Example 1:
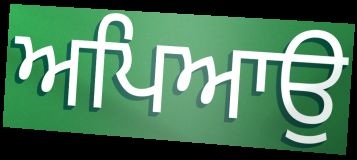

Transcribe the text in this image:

ਅਪਿਆਉ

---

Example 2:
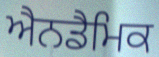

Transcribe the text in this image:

ਐਨਡੈਮਿਕ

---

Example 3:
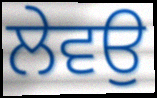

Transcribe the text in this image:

ਲੇਵਉ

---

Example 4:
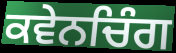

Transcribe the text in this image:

ਕਵੇਨਚਿੰਗ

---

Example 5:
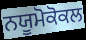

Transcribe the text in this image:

ਨਯੂਮੋਕੋਕਲ